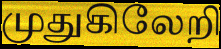
முதுகிலேறி